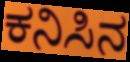
ಕನಿಸಿನ